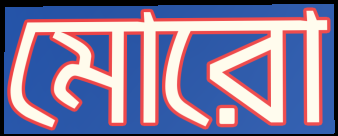
মোরো